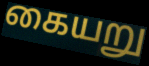
கையறு